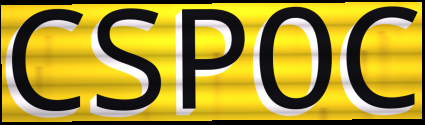
CSPOC